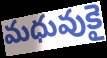
మధువుకై